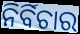
ନିର୍ବିଚାର